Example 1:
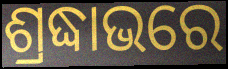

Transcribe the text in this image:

ଶ୍ରଦ୍ଧାଭରେ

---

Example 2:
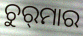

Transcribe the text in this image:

ଚୁର୍‍ମାର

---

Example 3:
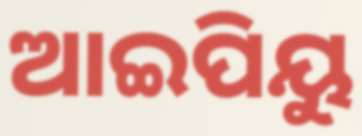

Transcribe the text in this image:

ଆଇପିୟୁ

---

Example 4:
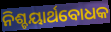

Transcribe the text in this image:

ନିଶ୍ଚୟାର୍ଥବୋଧକ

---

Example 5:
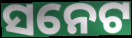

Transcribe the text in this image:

ସନେଟ